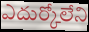
ఎదుర్కోలేని